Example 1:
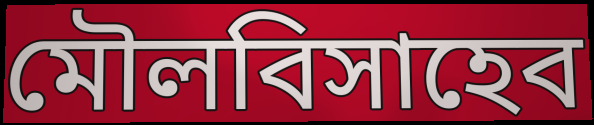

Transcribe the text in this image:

মৌলবিসাহেব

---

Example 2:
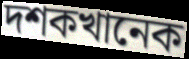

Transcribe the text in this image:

দশকখানেক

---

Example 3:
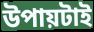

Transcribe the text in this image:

উপায়টাই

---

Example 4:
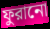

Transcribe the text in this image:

ফুরানো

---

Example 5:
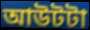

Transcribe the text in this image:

আউটটা